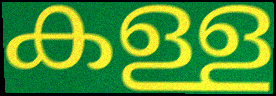
കള്ള